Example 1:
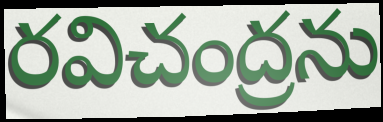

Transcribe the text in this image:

రవిచంద్రను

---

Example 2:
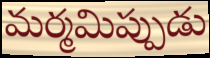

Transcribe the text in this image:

మర్మమిప్పుడు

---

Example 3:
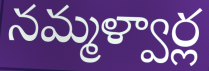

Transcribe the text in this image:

నమ్మళ్వార్ల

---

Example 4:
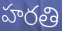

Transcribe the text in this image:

హరతి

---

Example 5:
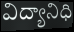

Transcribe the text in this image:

విద్యానిధి